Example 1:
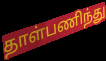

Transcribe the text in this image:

தாள்பணிந்து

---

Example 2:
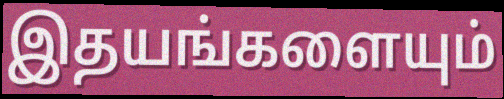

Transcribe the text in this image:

இதயங்களையும்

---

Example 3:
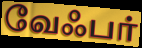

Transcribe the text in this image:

வேஃபர்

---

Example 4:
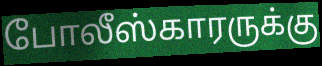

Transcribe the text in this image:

போலீஸ்காரருக்கு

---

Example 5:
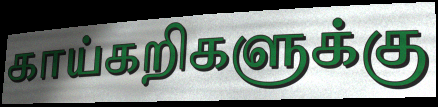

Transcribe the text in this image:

காய்கறிகளுக்கு